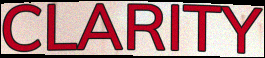
CLARITY